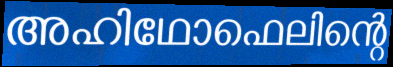
അഹിഥോഫെലിന്റെ